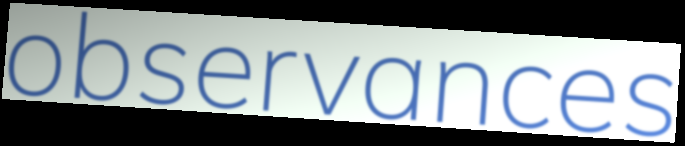
observances